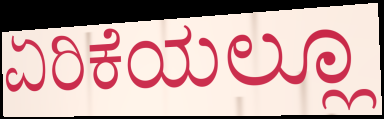
ಏರಿಕೆಯಲ್ಲೂ